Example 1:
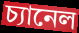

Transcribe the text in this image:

চ্যানেল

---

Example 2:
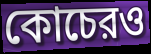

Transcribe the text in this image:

কোচেরও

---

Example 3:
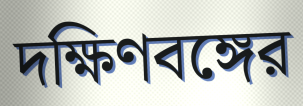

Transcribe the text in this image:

দক্ষিণবঙ্গের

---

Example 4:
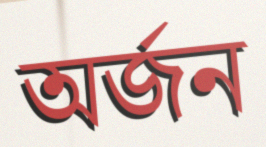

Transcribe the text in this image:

অর্জন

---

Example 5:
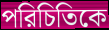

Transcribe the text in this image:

পরিচিতিকে